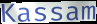
Kassam